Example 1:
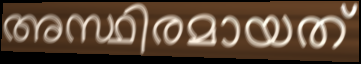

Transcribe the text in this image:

അസ്ഥിരമായത്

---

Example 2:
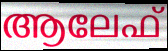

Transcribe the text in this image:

ആലേഫ്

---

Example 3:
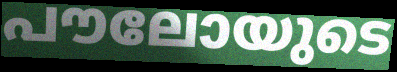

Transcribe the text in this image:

പൗലോയുടെ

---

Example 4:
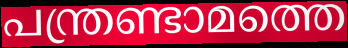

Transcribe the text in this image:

പന്ത്രണ്ടാമത്തെ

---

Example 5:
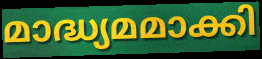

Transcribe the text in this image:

മാദ്ധ്യമമാക്കി